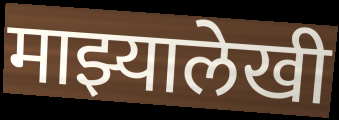
माझ्यालेखी